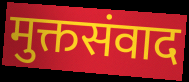
मुक्तसंवाद